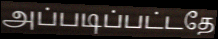
அப்படிப்பட்டதே